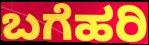
ಬಗೆಹರಿ